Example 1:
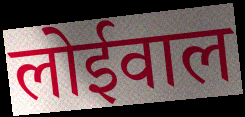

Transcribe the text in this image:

लोईवाल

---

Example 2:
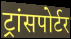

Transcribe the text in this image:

ट्रांसपोर्टर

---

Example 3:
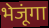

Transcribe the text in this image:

भेजूंगा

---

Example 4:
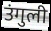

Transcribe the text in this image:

उंगुली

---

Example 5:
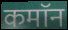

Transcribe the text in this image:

कमॉन